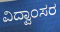
ವಿದ್ವಾಂಸರ